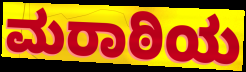
ಮರಾಠಿಯ